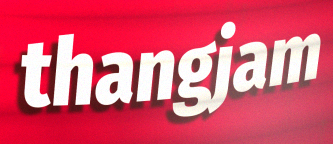
thangjam